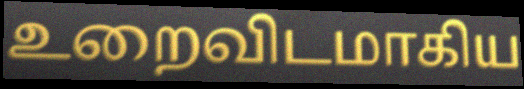
உறைவிடமாகிய